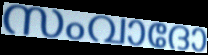
സംവാദോ